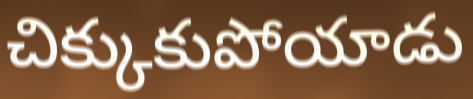
చిక్కుకుపోయాడు